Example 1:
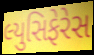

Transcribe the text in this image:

લ્યુસિફેરેસ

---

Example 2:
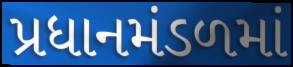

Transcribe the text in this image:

પ્રધાનમંડળમાં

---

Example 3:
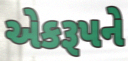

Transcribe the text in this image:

એકરૂપને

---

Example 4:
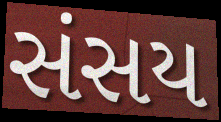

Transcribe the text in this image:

સંસય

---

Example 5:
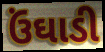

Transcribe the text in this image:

ઉંઘાડી